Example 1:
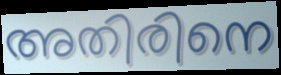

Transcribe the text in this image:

അതിരിനെ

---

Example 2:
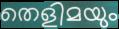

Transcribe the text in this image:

തെളിമയും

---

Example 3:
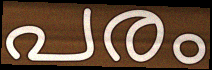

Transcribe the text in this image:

പരം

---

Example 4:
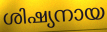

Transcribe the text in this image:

ശിഷ്യനായ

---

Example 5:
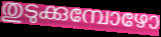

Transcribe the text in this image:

തുടുക്കുമ്പോഴോ